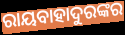
ରାୟବାହାଦୁରଙ୍କର